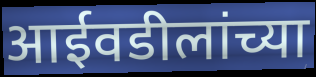
आईवडीलांच्या